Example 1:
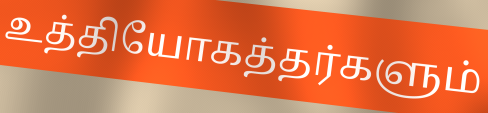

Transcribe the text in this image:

உத்தியோகத்தர்களும்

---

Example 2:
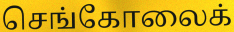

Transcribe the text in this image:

செங்கோலைக்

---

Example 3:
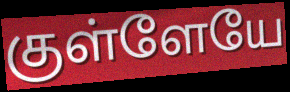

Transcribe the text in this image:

குள்ளேயே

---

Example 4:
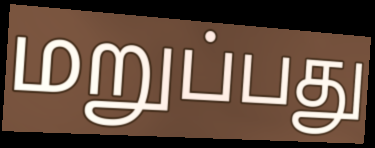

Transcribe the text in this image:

மறுப்பது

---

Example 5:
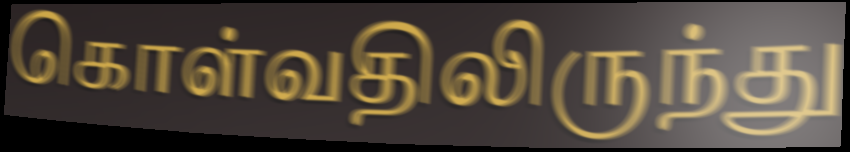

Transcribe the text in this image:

கொள்வதிலிருந்து